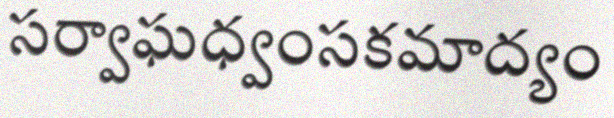
సర్వాఘధ్వంసకమాద్యం